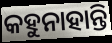
କହୁନାହାନ୍ତି